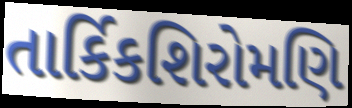
તાર્કિકશિરોમણિ